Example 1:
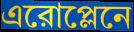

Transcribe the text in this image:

এরোপ্লেনে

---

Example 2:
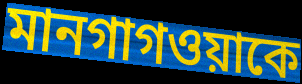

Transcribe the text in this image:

মানগাগওয়াকে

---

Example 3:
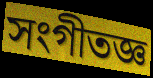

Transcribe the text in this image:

সংগীতজ্ঞ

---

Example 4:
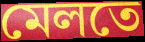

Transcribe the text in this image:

মেলতে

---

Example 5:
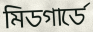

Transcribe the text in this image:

মিডগার্ডে